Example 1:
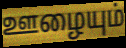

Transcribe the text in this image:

ஊழையும்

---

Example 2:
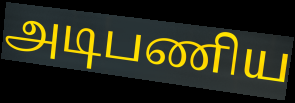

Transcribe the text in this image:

அடிபணிய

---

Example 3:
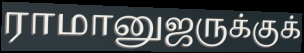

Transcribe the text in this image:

ராமானுஜருக்குக்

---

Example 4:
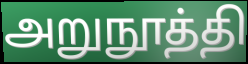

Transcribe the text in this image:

அறுநூத்தி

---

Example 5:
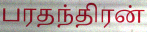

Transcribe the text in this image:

பரதந்திரன்